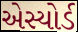
એસ્યોર્ડ